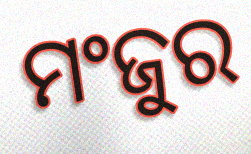
ମଂଜୁର